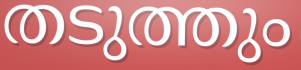
തടുത്തും